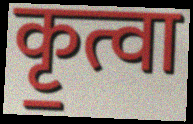
कृ॒त्वा